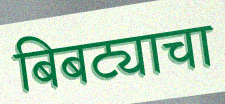
बिबट्याचा